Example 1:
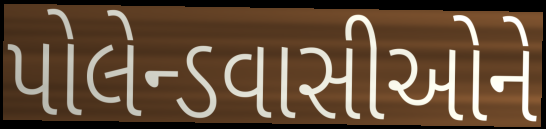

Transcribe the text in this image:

પોલેન્ડવાસીઓને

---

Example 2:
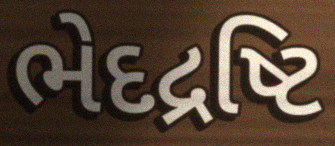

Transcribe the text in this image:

ભેદદ્રષ્ટિ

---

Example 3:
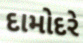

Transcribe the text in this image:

દામોદરે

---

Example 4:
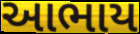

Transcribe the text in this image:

આભાય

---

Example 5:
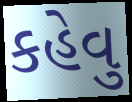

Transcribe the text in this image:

કહેવુ